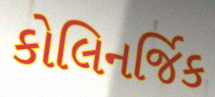
કોલિનર્જિક